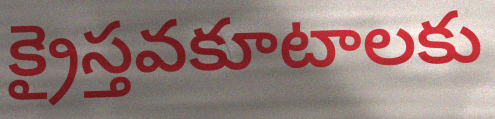
క్రైస్తవకూటాలకు